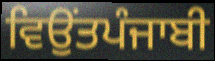
ਵਿਉਂਤਪੰਜਾਬੀ